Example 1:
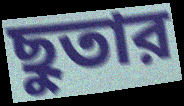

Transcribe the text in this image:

ছুতার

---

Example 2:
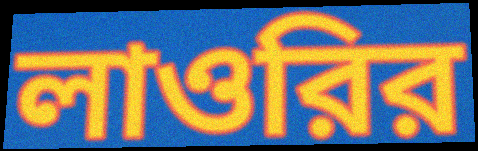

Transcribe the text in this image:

লাওরির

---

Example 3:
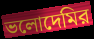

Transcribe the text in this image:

ভলোদেমির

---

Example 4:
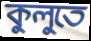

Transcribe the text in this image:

কুলুতে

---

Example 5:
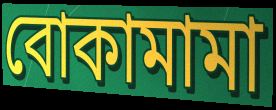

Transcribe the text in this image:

বোকামামা